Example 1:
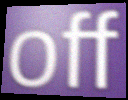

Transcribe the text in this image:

off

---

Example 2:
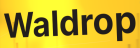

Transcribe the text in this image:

Waldrop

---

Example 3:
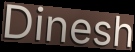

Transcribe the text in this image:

Dinesh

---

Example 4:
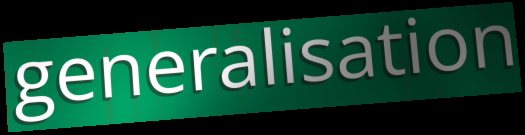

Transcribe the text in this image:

generalisation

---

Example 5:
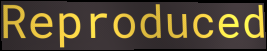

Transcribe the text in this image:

Reproduced